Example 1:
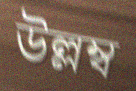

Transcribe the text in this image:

উল্লম্ব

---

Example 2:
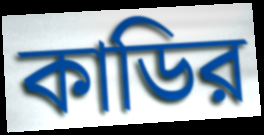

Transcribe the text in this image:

কাডির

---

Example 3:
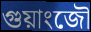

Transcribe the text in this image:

গুয়াংজৌ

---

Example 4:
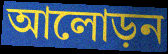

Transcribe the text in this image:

আলোড়ন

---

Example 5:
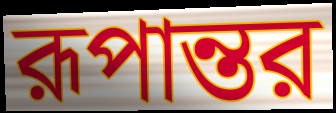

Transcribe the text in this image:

রূপান্তর